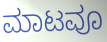
ಮಾಟವೂ